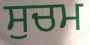
ਸੁਚਮ